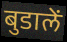
बुडालें